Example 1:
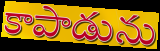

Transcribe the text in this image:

కాపాడును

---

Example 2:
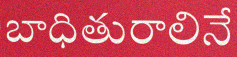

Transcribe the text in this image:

బాధితురాలినే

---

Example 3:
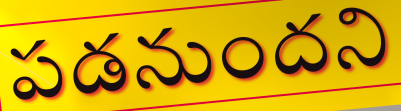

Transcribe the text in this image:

పడనుందని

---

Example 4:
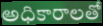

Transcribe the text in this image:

అధికారాలతో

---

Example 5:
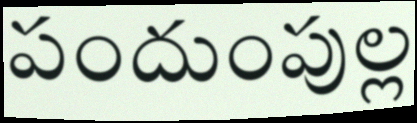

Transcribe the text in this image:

పందుంపుల్ల